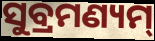
ସୁବ୍ରମଣ୍ୟମ୍